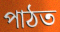
পাঠত